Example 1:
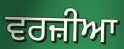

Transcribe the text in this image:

ਵਰਜ਼ੀਆ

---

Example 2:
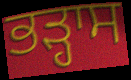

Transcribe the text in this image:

ਭੜ੍ਹਾਸ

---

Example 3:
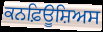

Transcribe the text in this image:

ਕਨਫ਼ਿਊਸ਼ਿਅਸ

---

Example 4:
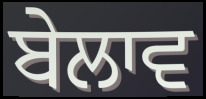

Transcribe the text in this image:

ਬੇਲਾਵ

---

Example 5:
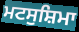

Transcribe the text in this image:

ਮਟਸੁਸ਼ਿਮਾ